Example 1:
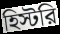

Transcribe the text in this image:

হিস্টরি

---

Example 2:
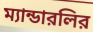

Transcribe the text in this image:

ম্যান্ডারলির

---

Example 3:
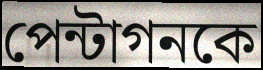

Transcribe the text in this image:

পেন্টাগনকে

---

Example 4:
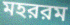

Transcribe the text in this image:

মহররম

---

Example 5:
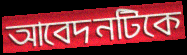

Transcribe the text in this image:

আবেদনটিকে